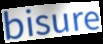
bisure